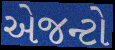
એજન્ટો